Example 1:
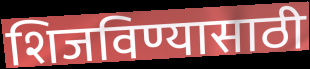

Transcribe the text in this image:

शिजविण्यासाठी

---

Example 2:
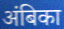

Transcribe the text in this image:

अंबिका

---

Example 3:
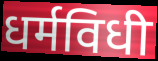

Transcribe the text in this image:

धर्मविधी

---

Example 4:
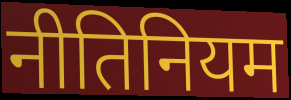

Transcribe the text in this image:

नीतिनियम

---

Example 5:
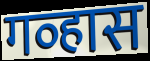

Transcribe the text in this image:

गव्हास